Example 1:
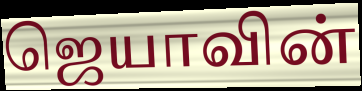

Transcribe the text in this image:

ஜெயாவின்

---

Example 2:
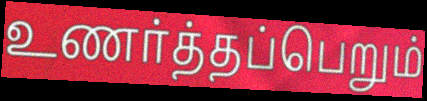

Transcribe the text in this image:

உணர்த்தப்பெறும்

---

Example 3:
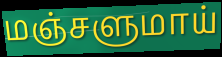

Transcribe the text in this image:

மஞ்சளுமாய்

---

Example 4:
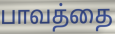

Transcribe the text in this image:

பாவத்தை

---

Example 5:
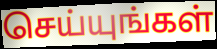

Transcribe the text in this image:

செய்யுங்கள்